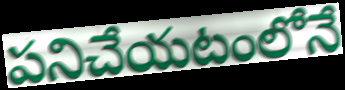
పనిచేయటంలోనే